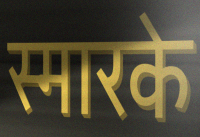
स्मारके